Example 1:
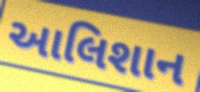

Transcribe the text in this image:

આલિશાન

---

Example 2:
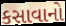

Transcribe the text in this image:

કસાવાનો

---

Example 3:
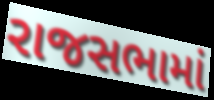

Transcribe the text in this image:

રાજસભામાં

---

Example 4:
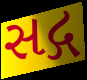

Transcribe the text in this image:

સદ્ગ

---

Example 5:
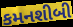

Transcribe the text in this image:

કમનશીબી